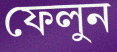
ফেলুন